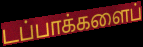
டப்பாக்களைப்